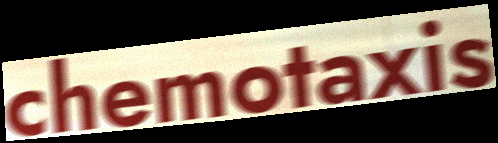
chemotaxis